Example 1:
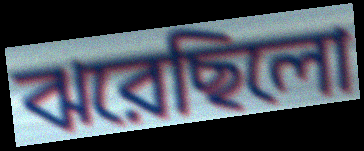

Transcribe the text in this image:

ঝরেছিলো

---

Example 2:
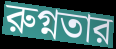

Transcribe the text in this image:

রুগ্নতার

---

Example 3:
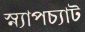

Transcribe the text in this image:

স্ন্যাপচ্যাট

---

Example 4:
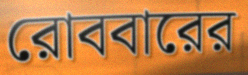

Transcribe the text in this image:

রোববারের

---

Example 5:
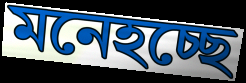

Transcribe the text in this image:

মনেহচ্ছে